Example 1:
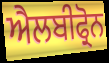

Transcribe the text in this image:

ਐਲਬੀਫ੍ਰੋਨ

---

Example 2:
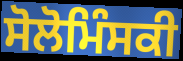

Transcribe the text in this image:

ਸੋਲੋਮਿੰਸਕੀ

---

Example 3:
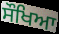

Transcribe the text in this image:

ਸੌਖਿਆ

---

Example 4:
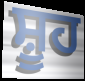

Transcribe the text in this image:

ਸ਼ੂਹ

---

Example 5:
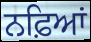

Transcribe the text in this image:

ਨਫ਼ਿਆਂ